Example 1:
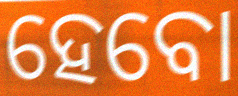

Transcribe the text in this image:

ହେବୋ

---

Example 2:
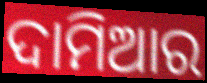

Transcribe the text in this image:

ଦାମିଆର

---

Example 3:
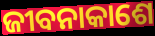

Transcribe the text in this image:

ଜୀବନାକାଶେ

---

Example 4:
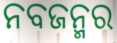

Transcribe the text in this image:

ନବଜନ୍ମର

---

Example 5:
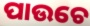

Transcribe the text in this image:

ପାଉଚେ